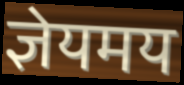
ज्ञेयमय